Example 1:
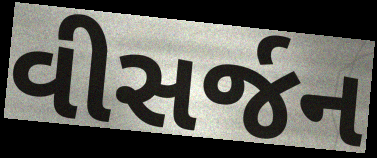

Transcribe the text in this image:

વીસર્જન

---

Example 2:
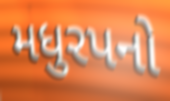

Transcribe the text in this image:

મધુરપનો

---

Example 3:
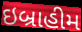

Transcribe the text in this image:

ઇબ્રાહીમ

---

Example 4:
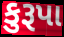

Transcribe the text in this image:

કુરૂપા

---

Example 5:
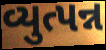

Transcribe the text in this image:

વ્યુત્પન્ન